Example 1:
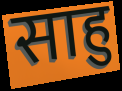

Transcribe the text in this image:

साहु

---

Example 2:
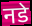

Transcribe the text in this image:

नडे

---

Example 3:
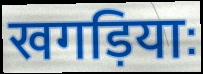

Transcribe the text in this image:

खगड़ियाः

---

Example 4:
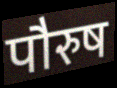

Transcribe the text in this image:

पौरुष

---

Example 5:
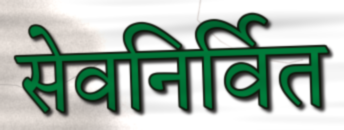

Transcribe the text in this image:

सेवनिर्वित